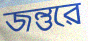
জন্তুৱে